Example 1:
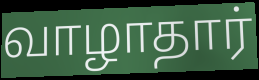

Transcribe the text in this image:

வாழாதார்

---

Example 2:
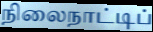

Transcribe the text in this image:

நிலைநாட்டிப்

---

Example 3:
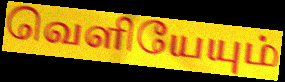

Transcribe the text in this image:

வெளியேயும்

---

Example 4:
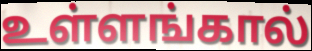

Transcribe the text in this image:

உள்ளங்கால்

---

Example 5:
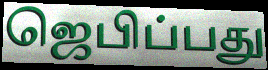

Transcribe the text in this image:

ஜெபிப்பது